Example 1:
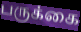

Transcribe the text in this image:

பருக்கை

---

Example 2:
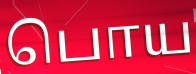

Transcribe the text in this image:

பொய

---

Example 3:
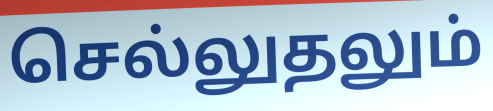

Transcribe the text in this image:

செல்லுதலும்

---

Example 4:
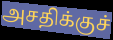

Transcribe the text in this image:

அசதிக்குச்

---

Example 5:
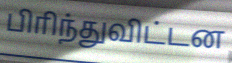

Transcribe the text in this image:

பிரிந்துவிட்டன